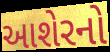
આશેરનો